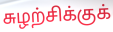
சுழற்சிக்குக்